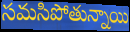
సమసిపోతున్నాయి